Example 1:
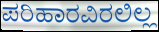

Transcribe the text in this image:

ಪರಿಹಾರವಿರಲಿಲ್ಲ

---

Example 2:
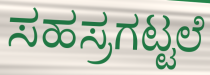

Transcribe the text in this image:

ಸಹಸ್ರಗಟ್ಟಲೆ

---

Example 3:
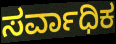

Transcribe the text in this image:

ಸರ್ವಾಧಿಕ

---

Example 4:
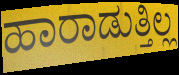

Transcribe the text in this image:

ಹಾರಾಡುತ್ತಿಲ್ಲ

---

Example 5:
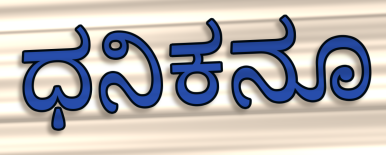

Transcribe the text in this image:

ಧನಿಕನೂ